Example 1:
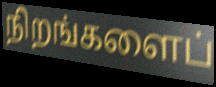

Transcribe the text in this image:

நிறங்களைப்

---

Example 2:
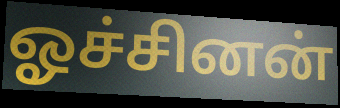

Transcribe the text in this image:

ஓச்சினன்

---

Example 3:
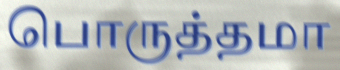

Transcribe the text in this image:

பொருத்தமா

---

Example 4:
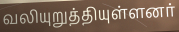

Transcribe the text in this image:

வலியுறுத்தியுள்ளனர்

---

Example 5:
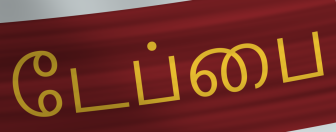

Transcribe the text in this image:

டேப்பை